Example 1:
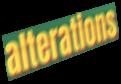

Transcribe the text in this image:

alterations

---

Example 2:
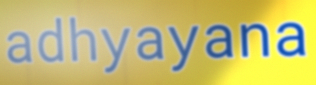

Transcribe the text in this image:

adhyayana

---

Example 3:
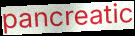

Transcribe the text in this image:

pancreatic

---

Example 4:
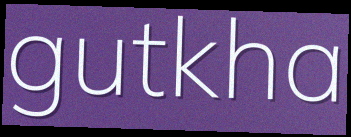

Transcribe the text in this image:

gutkha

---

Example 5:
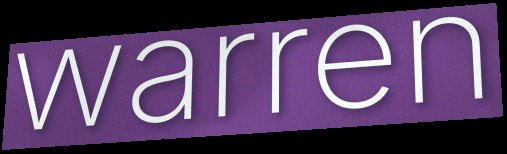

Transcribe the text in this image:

warren